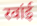
रवांई